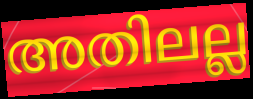
അതിലല്ല